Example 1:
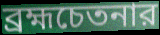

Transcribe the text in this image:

ব্রহ্মচেতনার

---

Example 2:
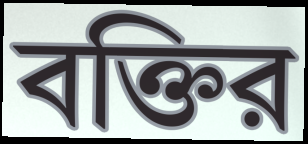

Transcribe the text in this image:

বক্তির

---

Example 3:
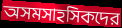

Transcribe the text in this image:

অসমসাহসিকদের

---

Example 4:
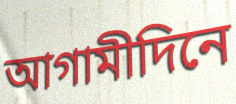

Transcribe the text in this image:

আগামীদিনে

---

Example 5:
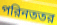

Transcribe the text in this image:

পরিনততর